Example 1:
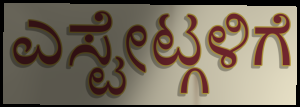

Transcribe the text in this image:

ಎಸ್ಟೇಟ್ಗಳಿಗೆ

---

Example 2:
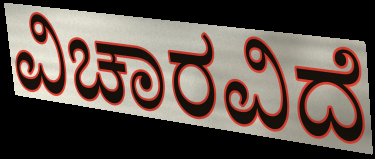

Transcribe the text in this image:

ವಿಚಾರವಿದೆ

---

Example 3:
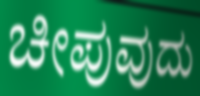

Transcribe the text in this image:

ಚೀಪುವುದು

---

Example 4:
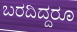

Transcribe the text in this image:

ಬರದಿದ್ದರೂ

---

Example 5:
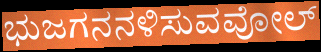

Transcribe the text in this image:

ಭುಜಗನನಳಿಸುವವೋಲ್